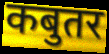
कबुतर